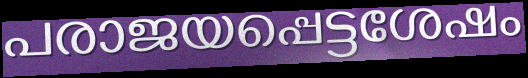
പരാജയപ്പെട്ടശേഷം